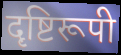
दृष्टिरूपी